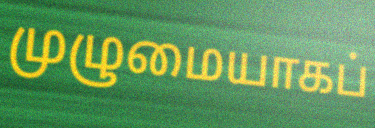
முழுமையாகப்